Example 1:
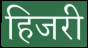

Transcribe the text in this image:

हिजरी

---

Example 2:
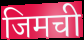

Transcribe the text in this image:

जिमची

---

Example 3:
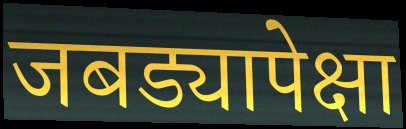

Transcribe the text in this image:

जबड्यापेक्षा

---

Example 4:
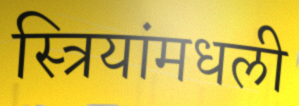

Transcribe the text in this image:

स्त्रियांमधली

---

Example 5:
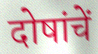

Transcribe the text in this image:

दोषांचें